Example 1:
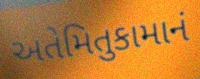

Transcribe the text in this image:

અતેમિતુકામાનં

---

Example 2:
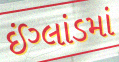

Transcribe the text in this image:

ઈંગ્લાંડમાં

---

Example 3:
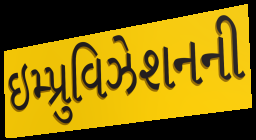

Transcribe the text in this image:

ઇમ્પ્રુવિઝેશનની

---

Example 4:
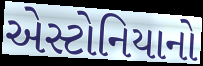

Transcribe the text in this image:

એસ્ટોનિયાનો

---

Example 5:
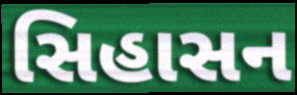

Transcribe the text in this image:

સિહાસન